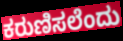
ಕರುಣಿಸಲೆಂದು